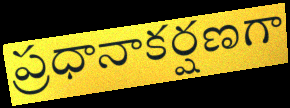
ప్రధానాకర్షణగా